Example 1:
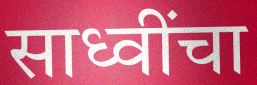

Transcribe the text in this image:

साध्वींचा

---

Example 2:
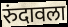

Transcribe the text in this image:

रुंदावला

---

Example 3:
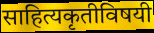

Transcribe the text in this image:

साहित्यकृतीविषयी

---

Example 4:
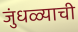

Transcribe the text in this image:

जुंधळ्याची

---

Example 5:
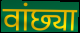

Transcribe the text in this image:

वांछ्या